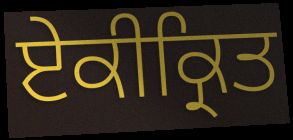
ਏਕੀਕ੍ਰਿਤ